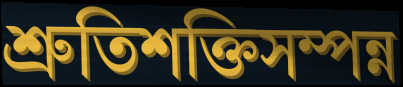
শ্রুতিশক্তিসম্পন্ন